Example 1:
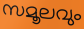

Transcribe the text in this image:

സമൂലവും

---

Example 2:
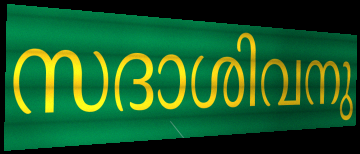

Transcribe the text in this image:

സദാശിവനു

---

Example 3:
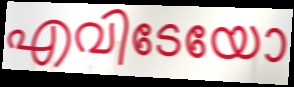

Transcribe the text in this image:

എവിടേയോ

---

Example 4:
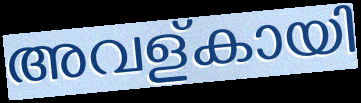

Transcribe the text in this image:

അവള്കായി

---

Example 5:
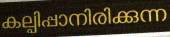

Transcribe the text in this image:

കല്പിപ്പാനിരിക്കുന്ന